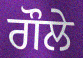
ਗੌਲੇ